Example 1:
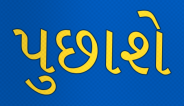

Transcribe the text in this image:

પુછાશે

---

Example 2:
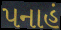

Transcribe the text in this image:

પનાહં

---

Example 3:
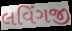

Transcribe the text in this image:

લવિંગજી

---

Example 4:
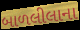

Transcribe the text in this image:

બાળલીલાના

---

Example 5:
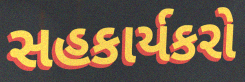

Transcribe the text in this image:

સહકાર્યકરો